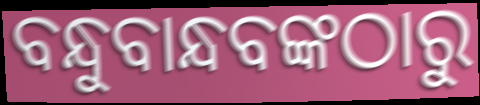
ବନ୍ଧୁବାନ୍ଧବଙ୍କଠାରୁ